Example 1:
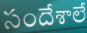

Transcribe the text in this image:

సందేశాలే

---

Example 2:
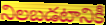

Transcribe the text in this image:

నిలబడటానికీ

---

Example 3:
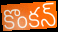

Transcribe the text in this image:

కొంకన్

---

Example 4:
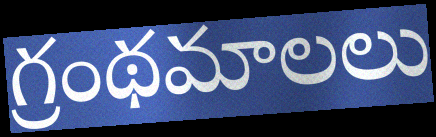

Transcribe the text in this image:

గ్రంథమాలలు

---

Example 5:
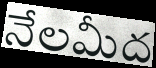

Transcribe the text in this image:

నేలమీద